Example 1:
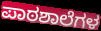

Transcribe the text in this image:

ಪಾಠಶಾಲೆಗಳ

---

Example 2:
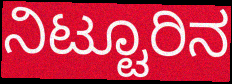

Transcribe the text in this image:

ನಿಟ್ಟೂರಿನ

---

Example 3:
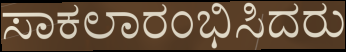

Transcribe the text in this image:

ಸಾಕಲಾರಂಭಿಸಿದರು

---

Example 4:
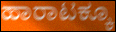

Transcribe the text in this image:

ಹಾರಾಟಕ್ಕೂ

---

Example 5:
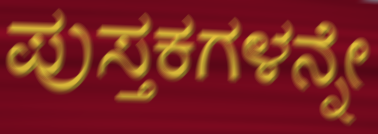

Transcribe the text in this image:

ಪುಸ್ತಕಗಳನ್ನೇ